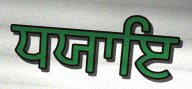
ਧਯਾਇ